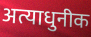
अत्याधुनीक